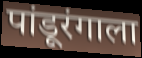
पांडूरंगाला